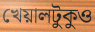
খেয়ালটুকুও